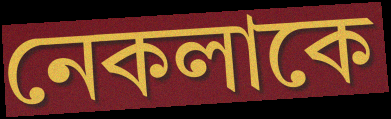
নেকলাকে